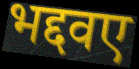
भद्दवए